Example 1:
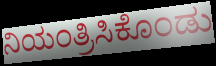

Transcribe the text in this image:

ನಿಯಂತ್ರಿಸಿಕೊಂಡು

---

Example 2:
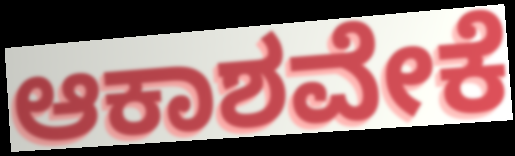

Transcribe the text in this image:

ಆಕಾಶವೇಕೆ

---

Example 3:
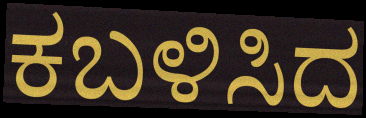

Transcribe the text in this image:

ಕಬಳಿಸಿದ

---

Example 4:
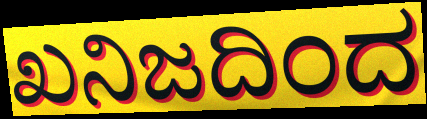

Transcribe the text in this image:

ಖನಿಜದಿಂದ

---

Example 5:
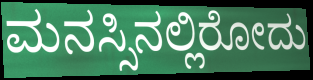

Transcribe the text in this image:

ಮನಸ್ಸಿನಲ್ಲಿರೋದು